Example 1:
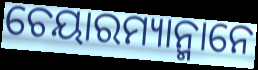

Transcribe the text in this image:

ଚେୟାରମ୍ୟାନ୍ମାନେ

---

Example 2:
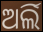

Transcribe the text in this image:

ଅର୍ଲି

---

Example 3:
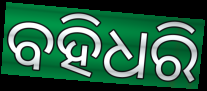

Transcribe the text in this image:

ବହିଧରି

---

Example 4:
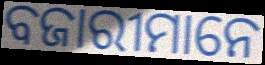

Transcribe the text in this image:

ବଜାରୀମାନେ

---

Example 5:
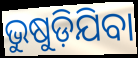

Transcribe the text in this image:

ଭୁଷୁଡ଼ିଯିବା